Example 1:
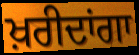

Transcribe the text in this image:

ਖ਼ਰੀਦਾਂਗਾ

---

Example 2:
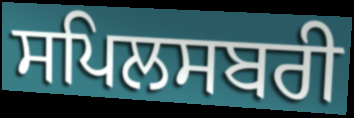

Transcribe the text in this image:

ਸਪਿਲਸਬਰੀ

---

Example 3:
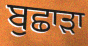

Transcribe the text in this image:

ਬੁਛਾੜਾ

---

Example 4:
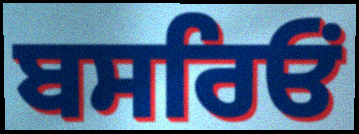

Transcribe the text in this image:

ਬਸਰਿਓਂ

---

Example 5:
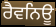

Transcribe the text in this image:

ਰੈਵਨਿਊ